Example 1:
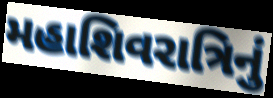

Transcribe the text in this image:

મહાશિવરાત્રિનું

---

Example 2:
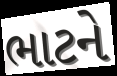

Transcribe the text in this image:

ભાટને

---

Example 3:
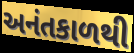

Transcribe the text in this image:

અનંતકાળથી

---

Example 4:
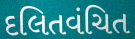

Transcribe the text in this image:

દલિતવંચિત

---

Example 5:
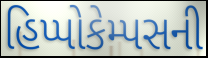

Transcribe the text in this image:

હિપ્પોકેમ્પસની